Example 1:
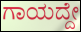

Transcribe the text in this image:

ಗಾಯದ್ದೇ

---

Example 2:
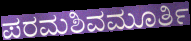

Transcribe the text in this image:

ಪರಮಶಿವಮೂರ್ತಿ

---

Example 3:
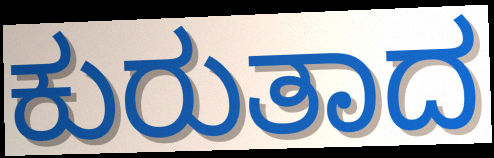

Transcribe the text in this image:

ಕುರುತಾದ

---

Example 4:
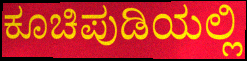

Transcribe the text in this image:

ಕೂಚಿಪುಡಿಯಲ್ಲಿ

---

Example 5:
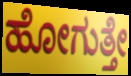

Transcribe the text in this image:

ಹೋಗುತ್ತೇ